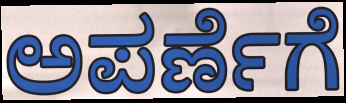
ಅಪರ್ಣೆಗೆ